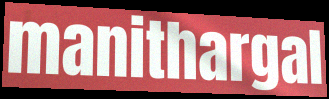
manithargal